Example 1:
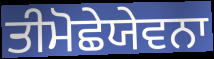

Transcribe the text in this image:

ਤੀਮੋਛੇਯੇਵਨਾ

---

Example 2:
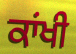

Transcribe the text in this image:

ਕਾਂਖੀ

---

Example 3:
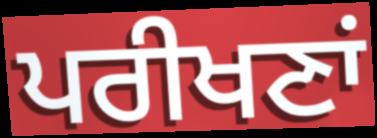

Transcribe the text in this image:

ਪਰੀਖਣਾਂ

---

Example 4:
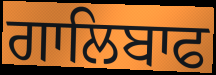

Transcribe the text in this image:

ਗਾਲਿਬਾਫ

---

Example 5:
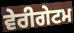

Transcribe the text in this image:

ਵੇਰੀਗੇਟਮ